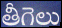
తీగెలు